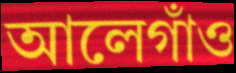
আলেগাঁও